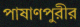
পাষাণপুরীর